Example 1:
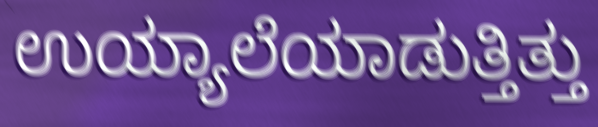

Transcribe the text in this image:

ಉಯ್ಯಾಲೆಯಾಡುತ್ತಿತ್ತು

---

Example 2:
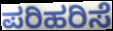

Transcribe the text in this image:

ಪರಿಹರಿಸೆ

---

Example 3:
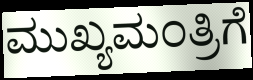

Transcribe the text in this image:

ಮುಖ್ಯಮಂತ್ರಿಗೆ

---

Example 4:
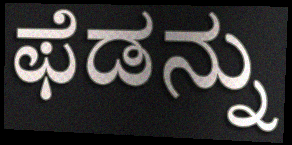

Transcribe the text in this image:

ಫೆಡನ್ನು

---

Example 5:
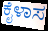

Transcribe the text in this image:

ಕೈಳಾಸ